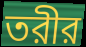
তরীর